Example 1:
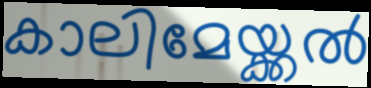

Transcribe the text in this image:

കാലിമേയ്ക്കൽ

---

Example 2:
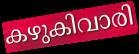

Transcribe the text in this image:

കഴുകിവാരി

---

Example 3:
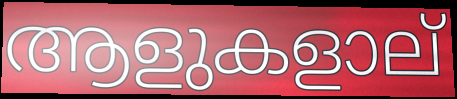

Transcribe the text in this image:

ആളുകളാല്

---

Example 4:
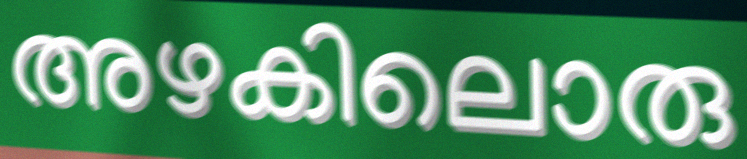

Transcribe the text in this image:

അഴകിലൊരു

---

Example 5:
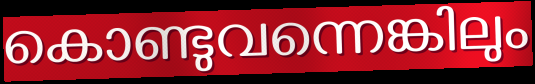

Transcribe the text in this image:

കൊണ്ടുവന്നെങ്കിലും